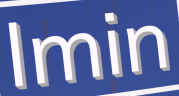
Imin